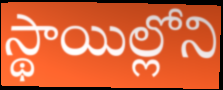
స్థాయిల్లోని